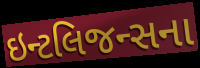
ઇન્ટલિજન્સના